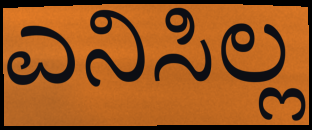
ಎನಿಸಿಲ್ಲ